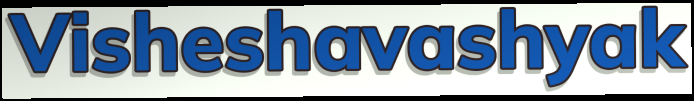
Visheshavashyak